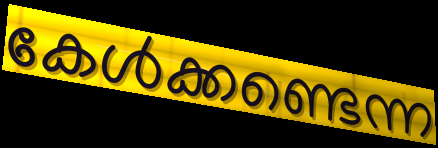
കേൾക്കണ്ടെന്ന